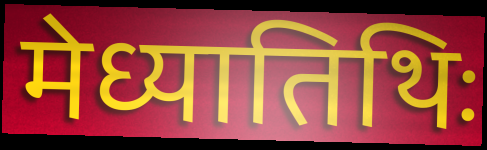
मेध्यातिथिः